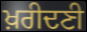
ਖ਼ਰੀਦਣੀ